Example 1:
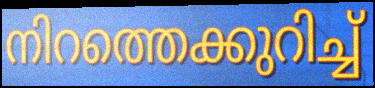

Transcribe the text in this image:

നിറത്തെക്കുറിച്ച്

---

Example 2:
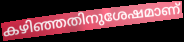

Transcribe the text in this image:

കഴിഞ്ഞതിനുശേഷമാണ്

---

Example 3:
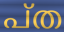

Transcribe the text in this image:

പ്‌ത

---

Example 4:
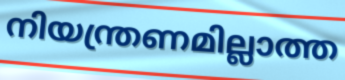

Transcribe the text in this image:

നിയന്ത്രണമില്ലാത്ത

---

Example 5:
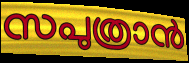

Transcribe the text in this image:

സപുത്രാൻ